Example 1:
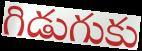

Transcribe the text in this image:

గిడుగుకు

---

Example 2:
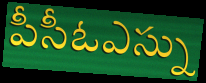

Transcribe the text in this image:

పీసీఓఎస్ను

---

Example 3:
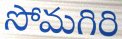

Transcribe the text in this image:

సోమగిరి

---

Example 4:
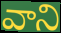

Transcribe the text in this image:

వాని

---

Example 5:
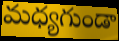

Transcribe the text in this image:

మధ్యగుండా